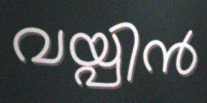
വയ്പിൻ